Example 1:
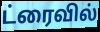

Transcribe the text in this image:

ட்ரைவில்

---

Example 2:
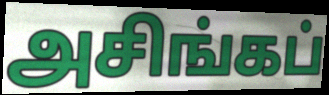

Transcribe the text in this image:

அசிங்கப்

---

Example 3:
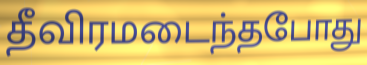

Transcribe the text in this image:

தீவிரமடைந்தபோது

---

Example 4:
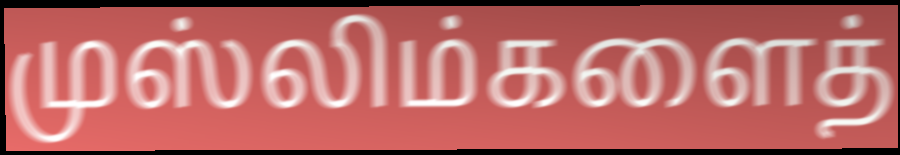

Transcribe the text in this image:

முஸ்லிம்களைத்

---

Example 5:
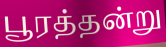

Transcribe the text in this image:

பூரத்தன்று